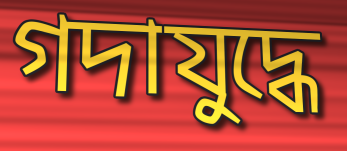
গদাযুদ্ধে